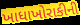
ખાધાખોરાકીની